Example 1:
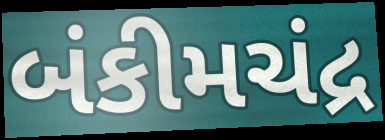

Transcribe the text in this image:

બંકીમચંદ્ર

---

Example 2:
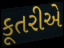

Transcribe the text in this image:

કૂતરીએ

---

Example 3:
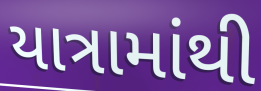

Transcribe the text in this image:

યાત્રામાંથી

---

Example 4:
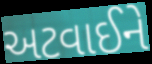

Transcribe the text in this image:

અટવાઈને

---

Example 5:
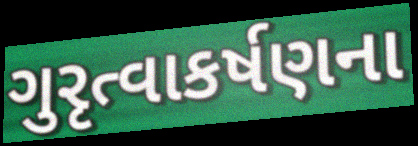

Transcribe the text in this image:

ગુરૃત્વાકર્ષણના